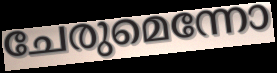
ചേരുമെന്നോ